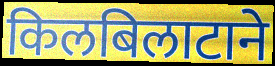
किलबिलाटाने